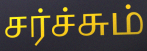
சர்ச்சும்